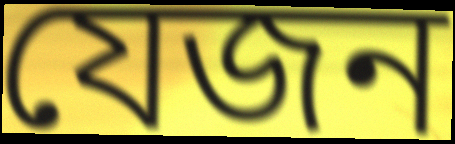
যেজন